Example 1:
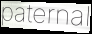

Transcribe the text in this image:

paternal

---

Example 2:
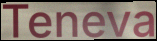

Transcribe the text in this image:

Teneva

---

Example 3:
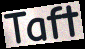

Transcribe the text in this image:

Taft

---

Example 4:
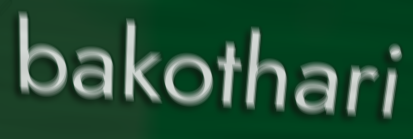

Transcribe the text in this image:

bakothari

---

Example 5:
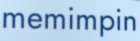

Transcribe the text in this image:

memimpin